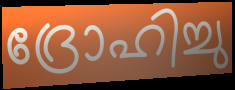
ദ്രോഹിച്ചു